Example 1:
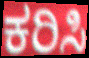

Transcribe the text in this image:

ಕರಿಸಿ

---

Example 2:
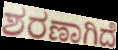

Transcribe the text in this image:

ಶರಣಾಗಿದೆ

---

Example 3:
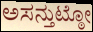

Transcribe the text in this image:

ಅಸನ್ತುಟ್ಠೋ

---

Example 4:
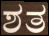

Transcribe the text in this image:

ಶತ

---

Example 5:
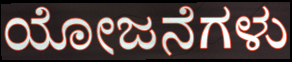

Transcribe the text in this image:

ಯೋಜನೆಗಳು